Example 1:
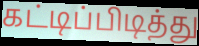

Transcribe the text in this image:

கட்டிப்பிடித்து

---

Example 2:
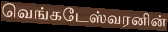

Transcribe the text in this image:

வெங்கடேஸ்வரனின்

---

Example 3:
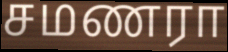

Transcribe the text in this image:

சமணரா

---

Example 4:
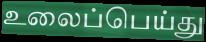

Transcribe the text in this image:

உலைப்பெய்து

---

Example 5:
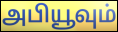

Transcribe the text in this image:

அபியூவும்